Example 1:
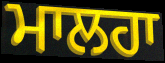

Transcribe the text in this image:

ਮਾਲਹਾ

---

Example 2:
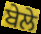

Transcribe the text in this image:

ਬੇਲੇ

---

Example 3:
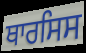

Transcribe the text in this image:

ਥਾਰਸਿਸ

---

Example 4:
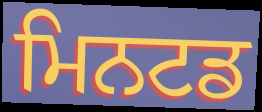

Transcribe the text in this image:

ਮਿਨਟਡ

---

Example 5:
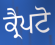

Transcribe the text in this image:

ਕ੍ਰੈਪਟੋ